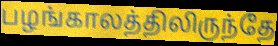
பழங்காலத்திலிருந்தே